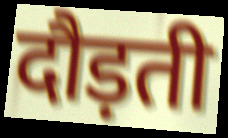
दौड़ती